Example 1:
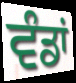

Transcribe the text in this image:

ਵੰਡਾਂ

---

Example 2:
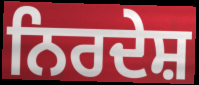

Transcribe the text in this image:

ਨਿਰਦੇਸ਼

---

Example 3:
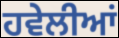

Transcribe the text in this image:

ਹਵੇਲੀਆਂ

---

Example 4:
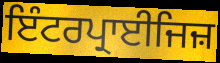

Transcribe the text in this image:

ਇੰਟਰਪ੍ਰਾਈਜਿਜ਼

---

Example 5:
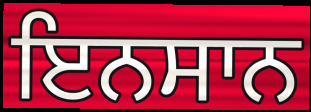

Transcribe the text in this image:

ਇਨਸਾਨ